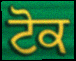
ਟੋਕ